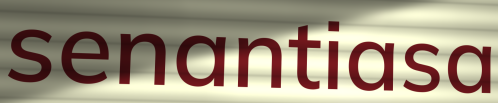
senantiasa